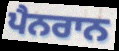
ਪੈਨਰਾਨ